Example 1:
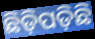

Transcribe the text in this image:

ଛିଡ଼ିପଡ଼ିଛି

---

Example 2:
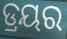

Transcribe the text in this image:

ଡ୍ରୟର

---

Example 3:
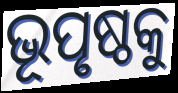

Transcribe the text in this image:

ଭୂପୃଷ୍ଠକୁ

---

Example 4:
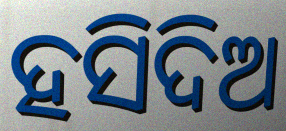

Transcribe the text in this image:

ହସିଦିଅ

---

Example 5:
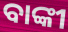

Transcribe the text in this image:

ବାଙ୍କୀ